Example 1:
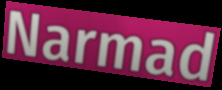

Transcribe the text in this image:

Narmad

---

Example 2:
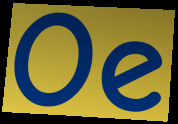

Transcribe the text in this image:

Oe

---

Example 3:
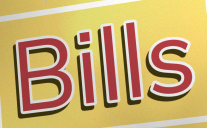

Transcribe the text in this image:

Bills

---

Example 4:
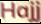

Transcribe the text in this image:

Hajj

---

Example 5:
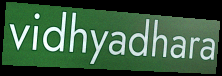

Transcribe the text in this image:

vidhyadhara